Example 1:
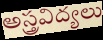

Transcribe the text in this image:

అస్త్రవిద్యలు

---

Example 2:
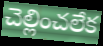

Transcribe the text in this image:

చెల్లించలేక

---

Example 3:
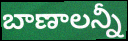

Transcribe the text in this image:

బాణాలన్నీ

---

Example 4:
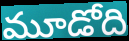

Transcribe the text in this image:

మూడోది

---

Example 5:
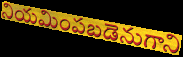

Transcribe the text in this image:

నియమింపబడెనుగాని